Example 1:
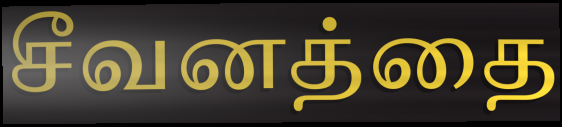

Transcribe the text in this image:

சீவனத்தை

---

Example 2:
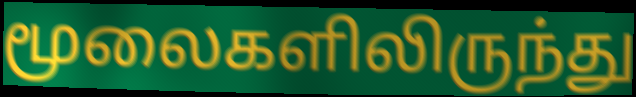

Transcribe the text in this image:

மூலைகளிலிருந்து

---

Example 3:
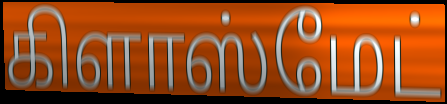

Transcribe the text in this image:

கிளாஸ்மேட்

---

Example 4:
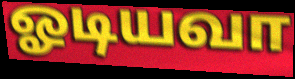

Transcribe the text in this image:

ஓடியவா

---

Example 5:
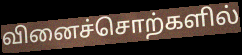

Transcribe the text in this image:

வினைச்சொற்களில்